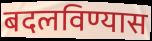
बदलविण्यास